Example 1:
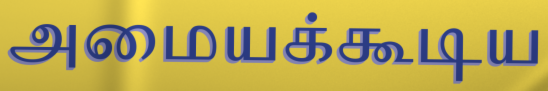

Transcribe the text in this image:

அமையக்கூடிய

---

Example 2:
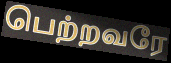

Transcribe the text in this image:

பெற்றவரே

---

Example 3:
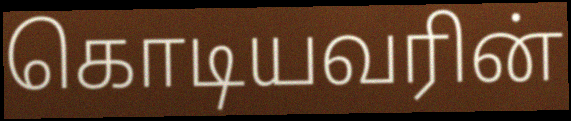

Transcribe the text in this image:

கொடியவரின்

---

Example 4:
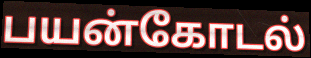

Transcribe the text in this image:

பயன்கோடல்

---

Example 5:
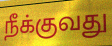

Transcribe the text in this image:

நீக்குவது